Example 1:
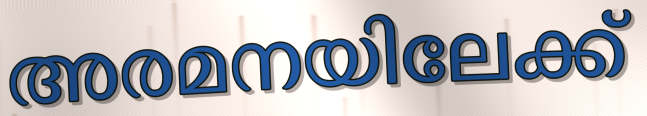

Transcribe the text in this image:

അരമനയിലേക്ക്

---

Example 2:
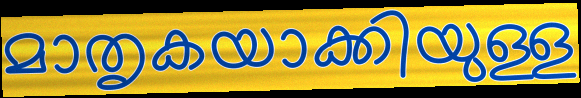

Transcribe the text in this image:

മാതൃകയാക്കിയുള്ള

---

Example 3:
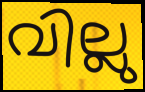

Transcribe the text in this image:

വില്ലു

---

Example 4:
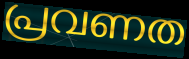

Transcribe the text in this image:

പ്രവണത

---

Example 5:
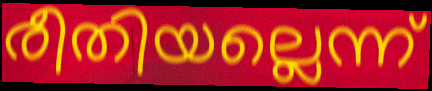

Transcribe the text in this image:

രീതിയല്ലെന്ന്